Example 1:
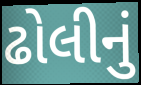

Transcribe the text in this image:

ઢોલીનું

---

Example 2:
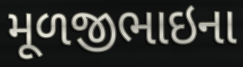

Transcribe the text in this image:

મૂળજીભાઇના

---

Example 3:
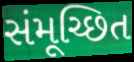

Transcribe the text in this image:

સંમૂચ્છિત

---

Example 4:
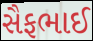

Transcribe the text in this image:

સૈફભાઈ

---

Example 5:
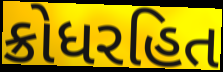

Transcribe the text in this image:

ક્રોધરહિત